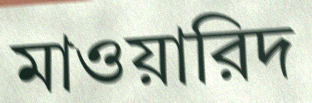
মাওয়ারিদ